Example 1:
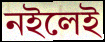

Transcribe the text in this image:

নইলেই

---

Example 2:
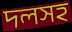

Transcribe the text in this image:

দলসহ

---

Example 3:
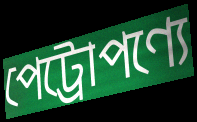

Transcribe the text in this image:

পেট্রোপণ্যে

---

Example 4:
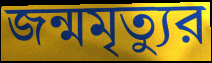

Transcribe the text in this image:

জন্মমৃত্যুর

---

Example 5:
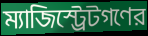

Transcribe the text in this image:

ম্যাজিস্ট্রেটগণের